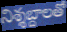
నిశ్శబ్దాలతో